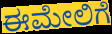
ಈಮೇಲಿಗೆ